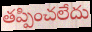
తప్పించలేదు